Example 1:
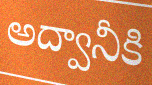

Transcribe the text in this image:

అద్వానీకి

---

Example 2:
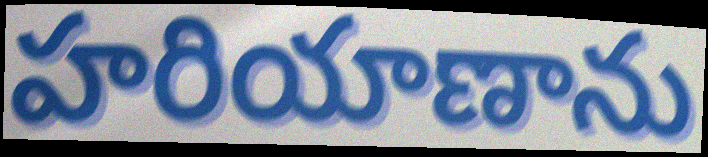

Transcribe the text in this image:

హరియాణాను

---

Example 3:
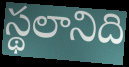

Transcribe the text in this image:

స్థలానిది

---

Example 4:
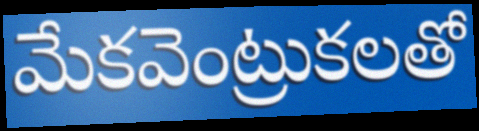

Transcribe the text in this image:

మేకవెంట్రుకలతో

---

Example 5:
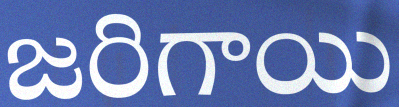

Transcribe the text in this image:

జరిగాయి